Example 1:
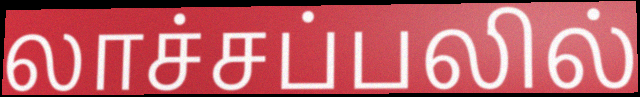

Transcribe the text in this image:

லாச்சப்பலில்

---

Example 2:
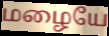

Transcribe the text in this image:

மழையே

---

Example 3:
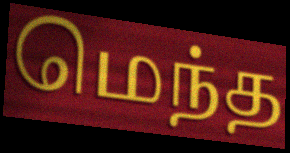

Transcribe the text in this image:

மெந்த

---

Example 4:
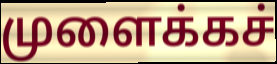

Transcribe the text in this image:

முளைக்கச்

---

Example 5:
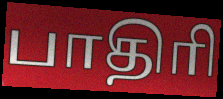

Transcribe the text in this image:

பாதிரி